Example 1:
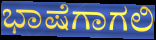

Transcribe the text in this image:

ಭಾಷೆಗಾಗಲಿ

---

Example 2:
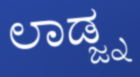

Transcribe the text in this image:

ಲಾಡ್ಜ್ನ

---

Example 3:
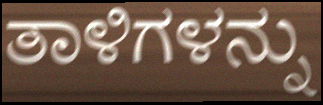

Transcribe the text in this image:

ತಾಳಿಗಳನ್ನು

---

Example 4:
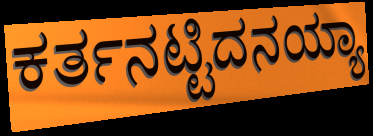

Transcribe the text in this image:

ಕರ್ತನಟ್ಟಿದನಯ್ಯಾ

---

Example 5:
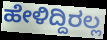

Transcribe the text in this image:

ಹೇಳಿದ್ದಿರಲ್ಲ